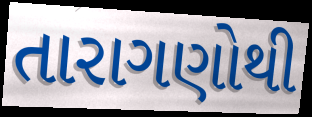
તારાગણોથી